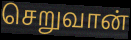
செறுவான்